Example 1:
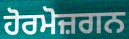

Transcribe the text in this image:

ਹੋਰਮੋਜ਼ਗਨ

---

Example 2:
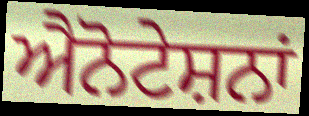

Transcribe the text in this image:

ਐਨੋਟੇਸ਼ਨਾਂ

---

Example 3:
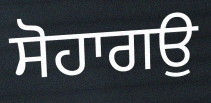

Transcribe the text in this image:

ਸੋਹਾਗਉ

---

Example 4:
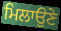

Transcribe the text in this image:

ਮਿਲਾਉਣੇ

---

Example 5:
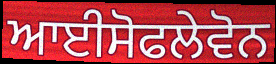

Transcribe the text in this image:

ਆਈਸੋਫਲੇਵੋਨ